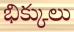
భిక్కులు